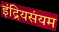
इंद्रियसंयम